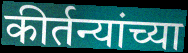
कीर्तन्यांच्या